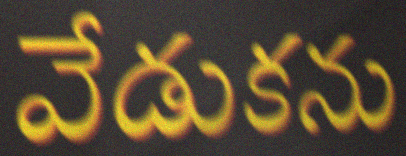
వేడుకను